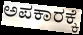
ಅಪಕಾರಕ್ಕೆ